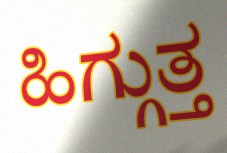
ಹಿಗ್ಗುತ್ತ